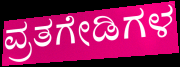
ವ್ರತಗೇಡಿಗಳ